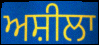
ਅਸ਼ੀਲਾ